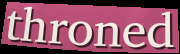
throned